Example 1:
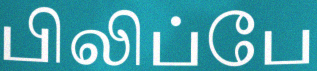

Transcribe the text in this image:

பிலிப்பே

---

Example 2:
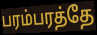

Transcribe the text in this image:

பரம்பரத்தே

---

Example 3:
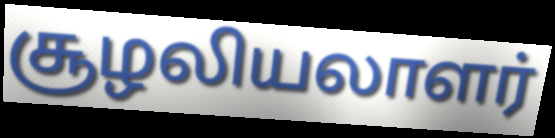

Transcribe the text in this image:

சூழலியலாளர்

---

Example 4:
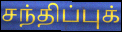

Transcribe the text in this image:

சந்திப்புக்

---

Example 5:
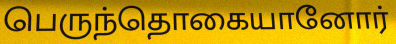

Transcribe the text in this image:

பெருந்தொகையானோர்